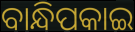
ବାନ୍ଧିପକାଇ